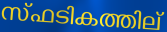
സ്ഫടികത്തില്